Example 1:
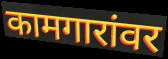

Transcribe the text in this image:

कामगारांवर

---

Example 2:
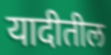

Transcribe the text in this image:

यादीतील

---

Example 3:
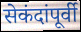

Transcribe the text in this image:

सेकंदांपूर्वी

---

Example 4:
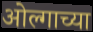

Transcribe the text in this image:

ओल्गाच्या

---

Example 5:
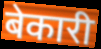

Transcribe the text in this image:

बेकारी